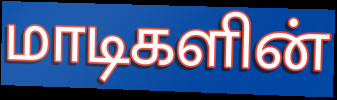
மாடிகளின்